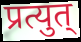
प्रत्युत्